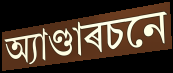
অ্যাণ্ডাৰচনে